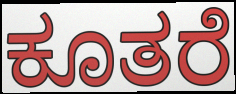
ಕೂತರೆ